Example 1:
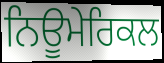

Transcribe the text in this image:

ਨਿਊਮੇਰਿਕਲ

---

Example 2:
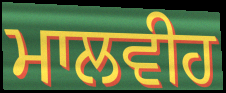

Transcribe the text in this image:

ਮਾਲਵੀਹ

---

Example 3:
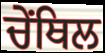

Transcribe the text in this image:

ਚੇਂਥਿਲ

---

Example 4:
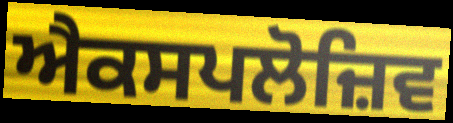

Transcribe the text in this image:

ਐਕਸਪਲੋਜ਼ਿਵ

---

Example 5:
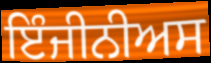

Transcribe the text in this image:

ਇੰਜੀਨੀਅਸ